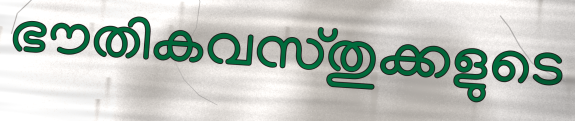
ഭൗതികവസ്തുക്കളുടെ